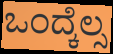
ಒಂದ್ಕೆಲ್ಸ